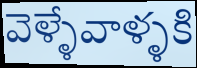
వెళ్ళేవాళ్ళకి